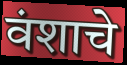
वंशाचे